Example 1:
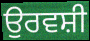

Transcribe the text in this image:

ਉਰਵਸ਼ੀ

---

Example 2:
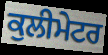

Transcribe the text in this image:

ਕੁਲੀਮੇਟਰ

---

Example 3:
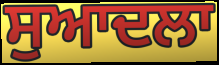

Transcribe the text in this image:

ਸੁਆਦਲਾ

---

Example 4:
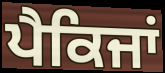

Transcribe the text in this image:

ਪੈਕਿਜਾਂ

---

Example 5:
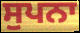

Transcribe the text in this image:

ਸੁਪਨਾ